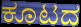
ಕೂಟದ